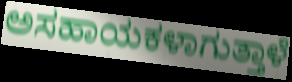
ಅಸಹಾಯಕಳಾಗುತ್ತಾಳೆ